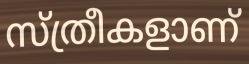
സ്ത്രീകളാണ്